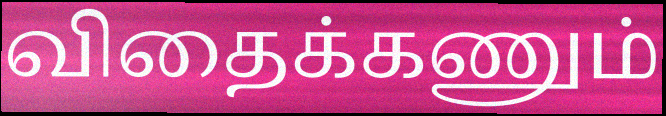
விதைக்கணும்